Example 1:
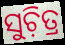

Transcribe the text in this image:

ସୁଚ଼ିତ୍ର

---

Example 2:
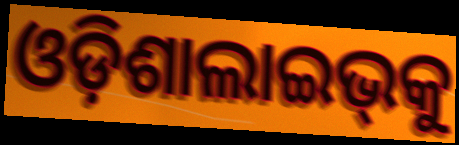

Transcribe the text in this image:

ଓଡ଼ିଶାଲାଇଭ୍‌କୁ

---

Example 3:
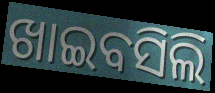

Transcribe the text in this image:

ଖାଇବସିଲି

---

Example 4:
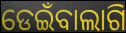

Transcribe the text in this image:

ଡେଇଁବାଲାଗି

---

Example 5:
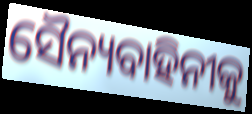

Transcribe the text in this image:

ସୈନ୍ୟବାହିନୀକୁ